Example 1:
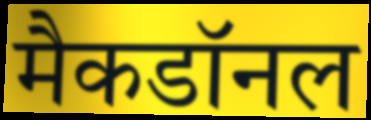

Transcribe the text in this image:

मैकडॉनल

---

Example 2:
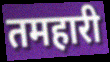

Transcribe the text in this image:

तमहारी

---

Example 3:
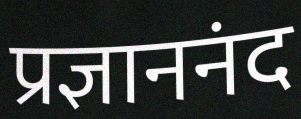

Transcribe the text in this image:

प्रज्ञाननंद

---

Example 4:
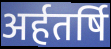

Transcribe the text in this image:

अर्हतर्षि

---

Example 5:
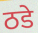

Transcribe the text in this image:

ठडे